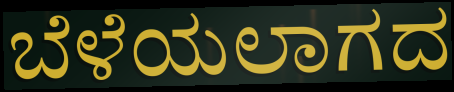
ಬೆಳೆಯಲಾಗದ